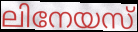
ലിനേയസ്